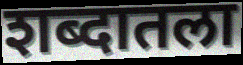
शब्दातला